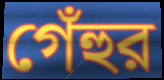
গেঁহুর